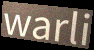
warli